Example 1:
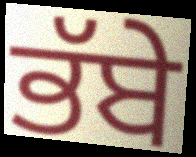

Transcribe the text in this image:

ਭੱਬੇ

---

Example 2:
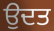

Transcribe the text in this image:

ਉਦਤ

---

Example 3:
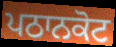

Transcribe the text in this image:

ਪਠਾਨਕੋਟ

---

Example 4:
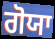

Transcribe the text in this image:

ਗੋਯਾ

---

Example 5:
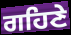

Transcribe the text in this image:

ਗਹਿਣੇ